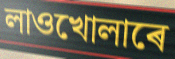
লাওখোলাৰে